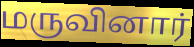
மருவினார்